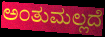
ಅಂತುಮಲ್ಲದೆ